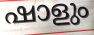
ഷാളും